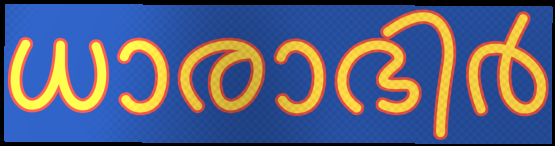
ധാരാഭിർ